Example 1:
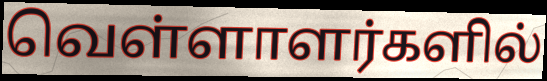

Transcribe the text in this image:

வெள்ளாளர்களில்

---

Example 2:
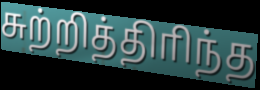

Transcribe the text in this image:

சுற்றித்திரிந்த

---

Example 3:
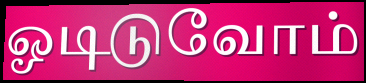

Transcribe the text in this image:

ஓடிடுவோம்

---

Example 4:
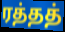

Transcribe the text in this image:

ரத்தத்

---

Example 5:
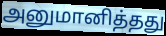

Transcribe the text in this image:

அனுமானித்தது